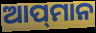
ଆପ୍‌ମାନ